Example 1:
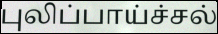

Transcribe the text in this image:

புலிப்பாய்ச்சல்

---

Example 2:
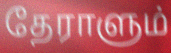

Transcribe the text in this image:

தேராளும்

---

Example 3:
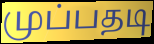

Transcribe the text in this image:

முப்பதடி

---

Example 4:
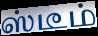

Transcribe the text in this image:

ஸ்டீம்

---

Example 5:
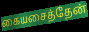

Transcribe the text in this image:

கையசைத்தேன்